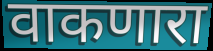
वाकणारा